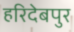
हरिदेबपुर